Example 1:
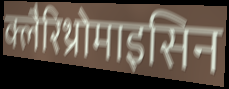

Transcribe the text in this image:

क्लैरिथ्रोमाइसिन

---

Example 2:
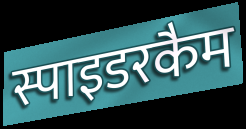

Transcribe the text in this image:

स्पाइडरकैम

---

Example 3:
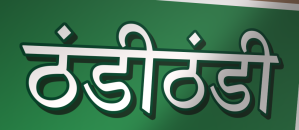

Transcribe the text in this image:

ठंडीठंडी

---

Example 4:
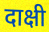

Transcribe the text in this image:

दाक्षी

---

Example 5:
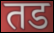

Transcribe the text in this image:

तड